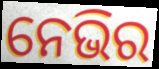
ନେଭିର